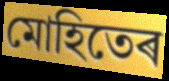
মোহিতেৰ